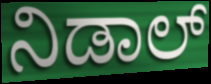
ನಿಡಾಲ್